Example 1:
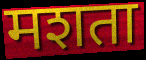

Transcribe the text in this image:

मशता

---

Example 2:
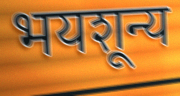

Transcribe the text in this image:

भयशून्य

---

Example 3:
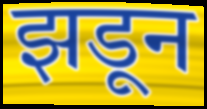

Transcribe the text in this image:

झडून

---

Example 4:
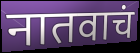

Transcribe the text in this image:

नातवाचं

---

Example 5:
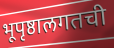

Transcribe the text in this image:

भूपृष्ठालगतची